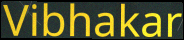
Vibhakar